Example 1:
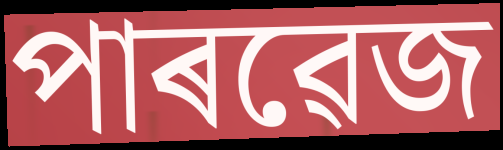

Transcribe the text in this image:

পাৰৱেজ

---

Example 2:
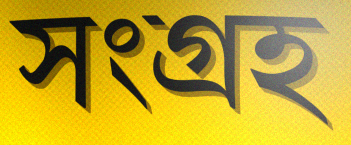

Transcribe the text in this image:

সংগ্ৰহ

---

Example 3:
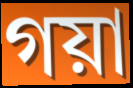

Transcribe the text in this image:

গয়া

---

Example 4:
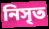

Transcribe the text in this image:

নিসৃত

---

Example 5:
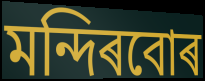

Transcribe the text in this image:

মন্দিৰবোৰ